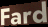
Fard